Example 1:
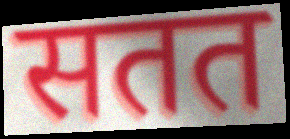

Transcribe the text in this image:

सतत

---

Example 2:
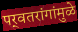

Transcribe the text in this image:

पर्वतरांगांमुळे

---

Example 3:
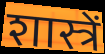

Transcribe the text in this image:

शास्त्रें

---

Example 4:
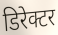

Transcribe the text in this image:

डिरेक्टर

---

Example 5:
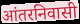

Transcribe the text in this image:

आंतरनिवासी